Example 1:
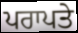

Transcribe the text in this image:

ਪਰਾਪਤੇ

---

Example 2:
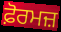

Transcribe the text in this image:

ਫ਼ੋਰਮਜ਼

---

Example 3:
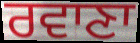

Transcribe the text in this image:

ਰਵਾਣਾ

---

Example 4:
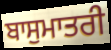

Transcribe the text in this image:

ਬਾਸੁਮਾਤਰੀ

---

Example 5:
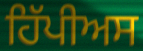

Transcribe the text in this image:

ਹਿੱਪੀਅਸ